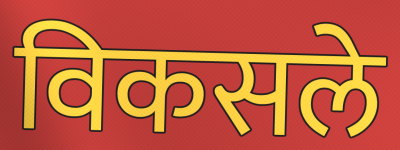
विकसले